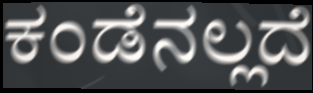
ಕಂಡೆನಲ್ಲದೆ